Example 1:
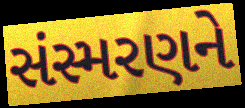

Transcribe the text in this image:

સંસ્મરણને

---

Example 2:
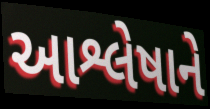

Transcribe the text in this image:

આશ્લેષાને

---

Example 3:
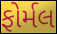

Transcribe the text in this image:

ફોર્મલ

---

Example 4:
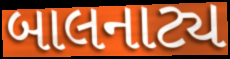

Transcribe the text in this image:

બાલનાટ્ય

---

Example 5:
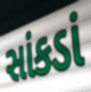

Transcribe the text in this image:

સાંકડાં